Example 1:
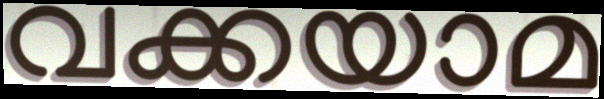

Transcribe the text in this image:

വക്കയാമ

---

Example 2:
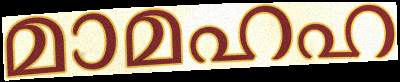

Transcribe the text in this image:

മാമഹഹ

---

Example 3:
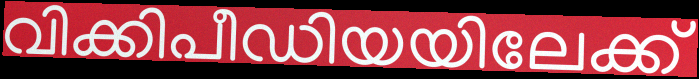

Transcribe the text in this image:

വിക്കിപീഡിയയിലേക്ക്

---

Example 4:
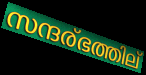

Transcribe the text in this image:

സന്ദര്ഭത്തില്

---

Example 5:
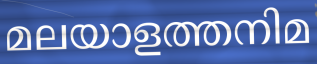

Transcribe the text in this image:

മലയാളത്തനിമ